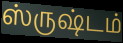
ஸ்ருஷ்டம்